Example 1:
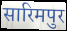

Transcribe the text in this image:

सारिमपुर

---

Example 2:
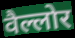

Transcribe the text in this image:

वैल्लोर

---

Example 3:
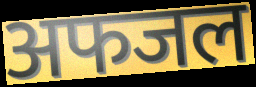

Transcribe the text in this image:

अफजल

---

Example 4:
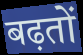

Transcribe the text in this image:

बढ़तों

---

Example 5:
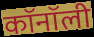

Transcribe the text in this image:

कॉनॉली